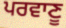
ਪਰਵਾਣੂ